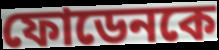
ফোডেনকে